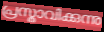
പ്രസ്താവിക്കുന്നു